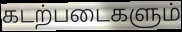
கடற்படைகளும்